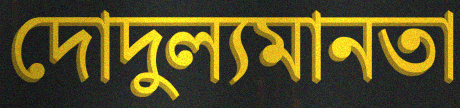
দোদুল্যমানতা